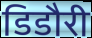
डिडौरी